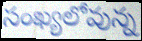
సంఖ్యలోవున్న